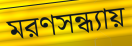
মরণসন্ধ্যায়